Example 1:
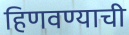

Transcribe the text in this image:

हिणवण्याची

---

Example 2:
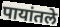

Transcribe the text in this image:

पायांतले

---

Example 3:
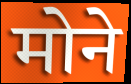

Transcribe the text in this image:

मोने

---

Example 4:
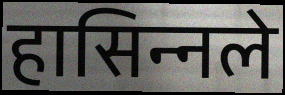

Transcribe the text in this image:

हासिन्नले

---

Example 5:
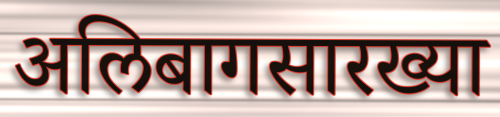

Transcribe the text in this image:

अलिबागसारख्या